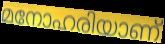
മനോഹരിയാണ്